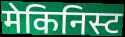
मेकिनिस्ट